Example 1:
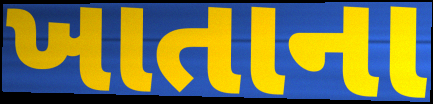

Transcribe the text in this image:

ખાતાના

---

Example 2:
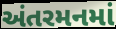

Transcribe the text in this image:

અંતરમનમાં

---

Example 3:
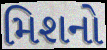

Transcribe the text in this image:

મિશનો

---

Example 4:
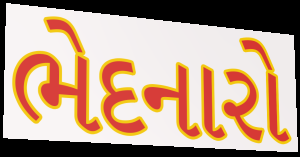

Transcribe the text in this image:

ભેદનારો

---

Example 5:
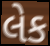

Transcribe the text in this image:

લેક